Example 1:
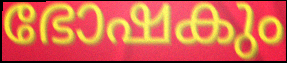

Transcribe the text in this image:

ഭോഷകും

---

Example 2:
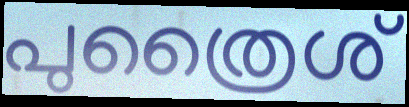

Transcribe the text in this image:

പുത്രൈശ്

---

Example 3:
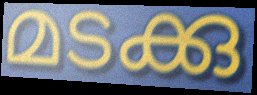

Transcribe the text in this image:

മടക്കു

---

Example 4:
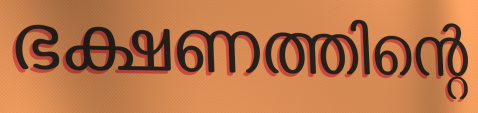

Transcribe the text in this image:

ഭക്ഷണത്തിന്റെ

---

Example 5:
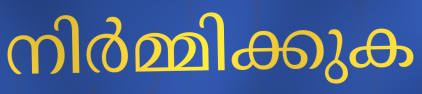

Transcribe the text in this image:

നിർമ്മിക്കുക